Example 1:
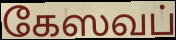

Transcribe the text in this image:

கேஸவப்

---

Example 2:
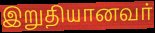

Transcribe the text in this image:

இறுதியானவர்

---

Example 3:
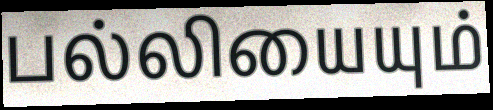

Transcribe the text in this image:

பல்லியையும்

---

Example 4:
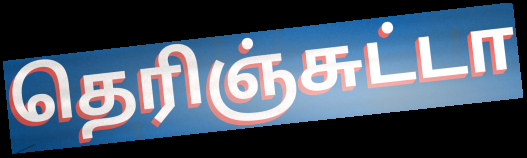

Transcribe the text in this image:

தெரிஞ்சுட்டா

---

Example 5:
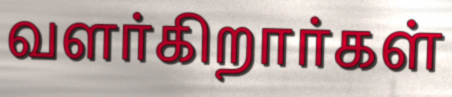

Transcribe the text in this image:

வளர்கிறார்கள்